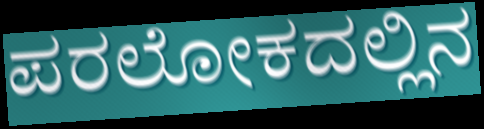
ಪರಲೋಕದಲ್ಲಿನ